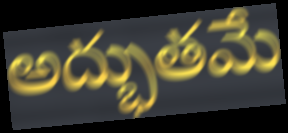
అద్భుతమే